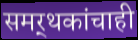
समर्थकांचाही